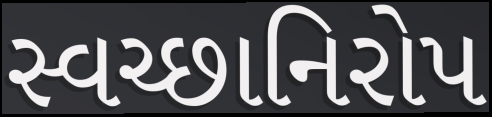
સ્વચ્છાનિરોપ